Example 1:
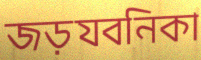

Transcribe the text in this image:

জড়যবনিকা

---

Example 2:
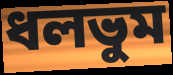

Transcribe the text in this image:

ধলভুম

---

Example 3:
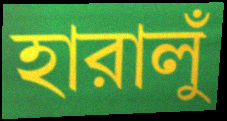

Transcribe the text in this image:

হারালুঁ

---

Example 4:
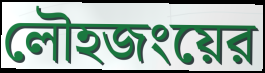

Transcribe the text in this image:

লৌহজংয়ের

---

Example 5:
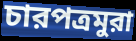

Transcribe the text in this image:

চারপত্রমুরা